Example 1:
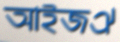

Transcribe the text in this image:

আইজঐ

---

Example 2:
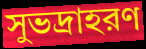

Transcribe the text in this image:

সুভদ্রাহরণ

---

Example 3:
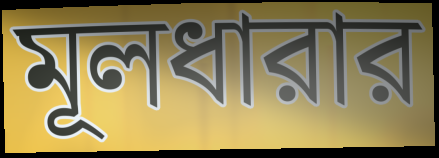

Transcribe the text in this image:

মূলধারার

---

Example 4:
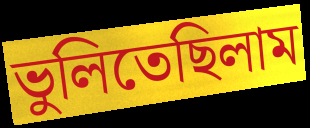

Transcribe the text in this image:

ভুলিতেছিলাম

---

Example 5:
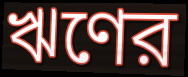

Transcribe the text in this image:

ঋণের